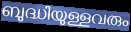
ബുദ്ധിയുള്ളവരും